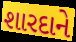
શારદાને